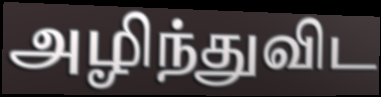
அழிந்துவிட